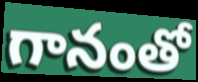
గానంతో